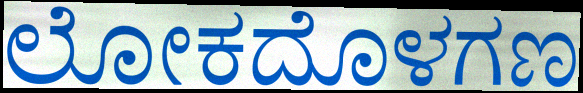
ಲೋಕದೊಳಗಣ